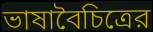
ভাষাবৈচিত্রের